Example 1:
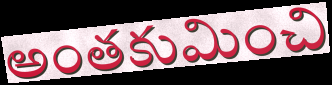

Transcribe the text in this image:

అంతకుమించి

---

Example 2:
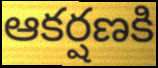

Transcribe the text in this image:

ఆకర్షణకి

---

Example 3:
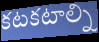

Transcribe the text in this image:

కటకటాల్ని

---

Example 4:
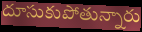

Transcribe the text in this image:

దూసుకుపోతున్నారు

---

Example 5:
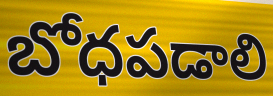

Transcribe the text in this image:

బోధపడాలి